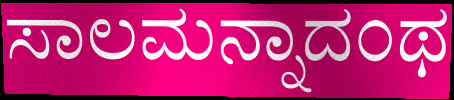
ಸಾಲಮನ್ನಾದಂಥ